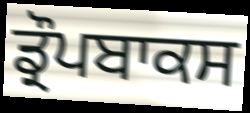
ਡ੍ਰੌਪਬਾਕਸ